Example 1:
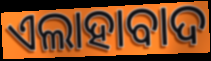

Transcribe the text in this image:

ଏଲାହାବାଦ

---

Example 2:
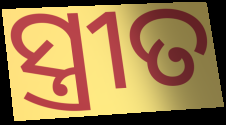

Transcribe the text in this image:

ସ୍ତ୍ରୀତ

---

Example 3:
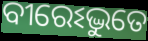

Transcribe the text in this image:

ବୀରେଽଦ୍ଭୁତେ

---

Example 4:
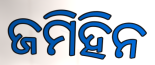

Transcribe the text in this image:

ଜମିହିନ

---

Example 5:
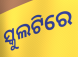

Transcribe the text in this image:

ସ୍କୁଲଟିରେ